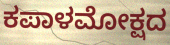
ಕಪಾಳಮೋಕ್ಷದ